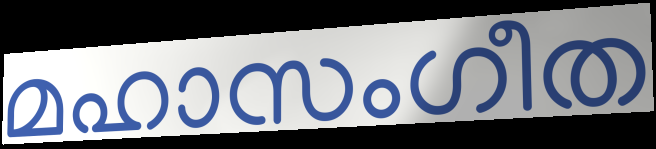
മഹാസംഗീത